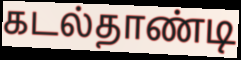
கடல்தாண்டி